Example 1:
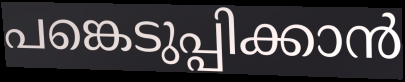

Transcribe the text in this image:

പങ്കെടുപ്പിക്കാൻ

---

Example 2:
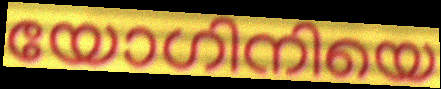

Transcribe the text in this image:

യോഗിനിയെ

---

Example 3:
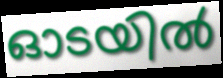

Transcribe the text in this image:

ഓടയിൽ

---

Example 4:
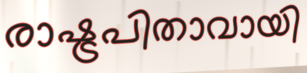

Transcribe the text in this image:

രാഷ്ട്രപിതാവായി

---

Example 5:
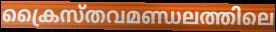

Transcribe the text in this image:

ക്രൈസ്തവമണ്ഡലത്തിലെ